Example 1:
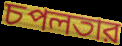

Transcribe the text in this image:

চপলতার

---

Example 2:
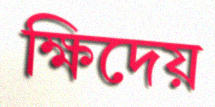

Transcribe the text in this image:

ক্ষিদেয়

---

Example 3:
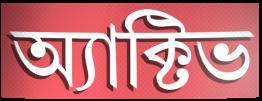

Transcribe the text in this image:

অ্যাক্টিভ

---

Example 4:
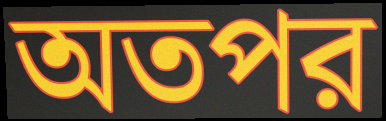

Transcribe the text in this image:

অতপর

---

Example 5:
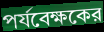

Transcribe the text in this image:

পর্যবেক্ষকের